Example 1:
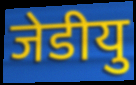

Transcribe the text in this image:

जेडीयु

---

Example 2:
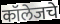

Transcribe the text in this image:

कॉलेजचे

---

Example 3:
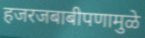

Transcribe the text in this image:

हजरजबाबीपणामुळे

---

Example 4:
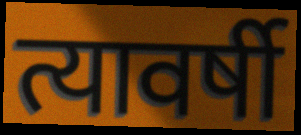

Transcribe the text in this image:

त्यावर्षी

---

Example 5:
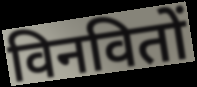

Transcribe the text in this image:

विनवितों